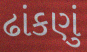
ઢાંકણું